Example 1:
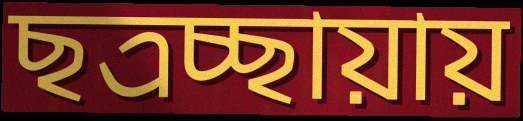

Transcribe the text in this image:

ছত্রচ্ছায়ায়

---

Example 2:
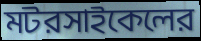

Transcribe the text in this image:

মটরসাইকেলের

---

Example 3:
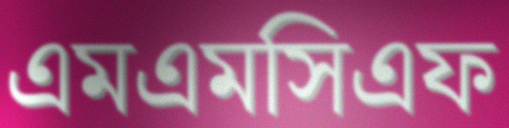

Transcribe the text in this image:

এমএমসিএফ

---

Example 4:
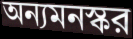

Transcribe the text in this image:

অন্যমনস্কর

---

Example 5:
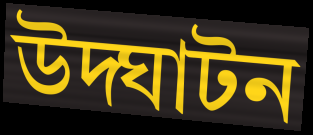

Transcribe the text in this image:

উদ্ঘাটন